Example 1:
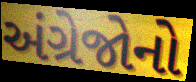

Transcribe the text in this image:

અંગ્રેજોનો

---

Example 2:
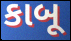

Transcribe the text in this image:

કાબૂ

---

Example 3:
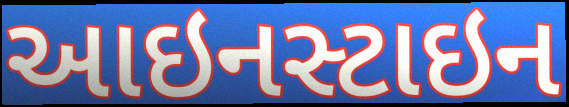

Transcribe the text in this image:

આઇનસ્ટાઇન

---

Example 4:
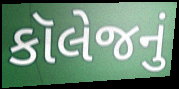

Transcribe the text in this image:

કૉલેજનું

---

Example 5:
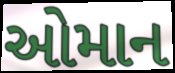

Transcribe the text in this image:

ઓમાન